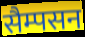
सैम्पसन